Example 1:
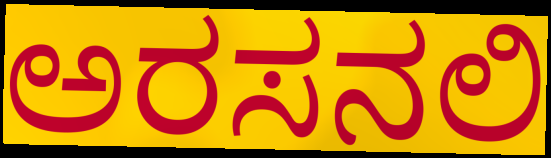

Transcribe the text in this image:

ಅರಸನಲಿ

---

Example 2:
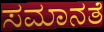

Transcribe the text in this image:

ಸಮಾನತೆ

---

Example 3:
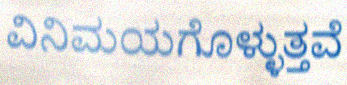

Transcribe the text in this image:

ವಿನಿಮಯಗೊಳ್ಳುತ್ತವೆ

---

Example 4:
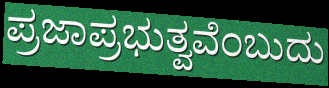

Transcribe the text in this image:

ಪ್ರಜಾಪ್ರಭುತ್ವವೆಂಬುದು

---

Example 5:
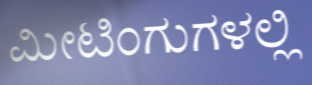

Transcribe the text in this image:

ಮೀಟಿಂಗುಗಳಲ್ಲಿ